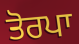
ਤੋਰਪਾ